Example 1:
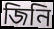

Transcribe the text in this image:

জিনি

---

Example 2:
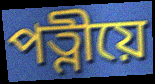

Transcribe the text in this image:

পত্নীয়ে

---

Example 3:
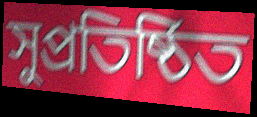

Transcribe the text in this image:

সুপ্ৰতিষ্ঠিত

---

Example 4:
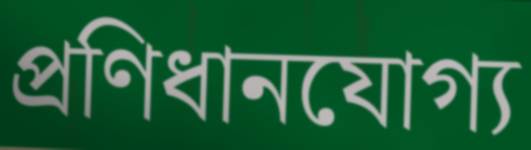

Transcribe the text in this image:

প্ৰণিধানযোগ্য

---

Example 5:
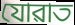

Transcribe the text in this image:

যোৱাত